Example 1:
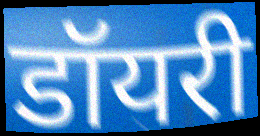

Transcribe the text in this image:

डॉयरी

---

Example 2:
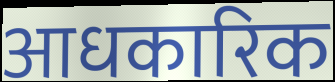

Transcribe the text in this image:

आधकारिक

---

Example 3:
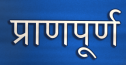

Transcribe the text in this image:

प्राणपूर्ण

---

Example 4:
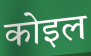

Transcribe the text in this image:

कोइल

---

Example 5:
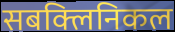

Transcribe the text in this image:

सबक्लिनिकल